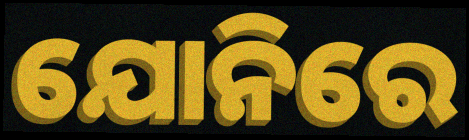
ଯୋନିରେ